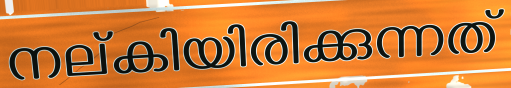
നല്‌കിയിരിക്കുന്നത്